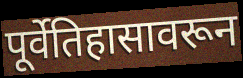
पूर्वेतिहासावरून